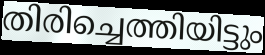
തിരിച്ചെത്തിയിട്ടും